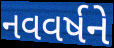
નવવર્ષને